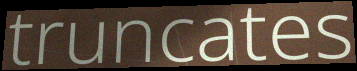
truncates